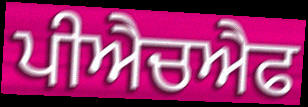
ਪੀਐਚਐਫ